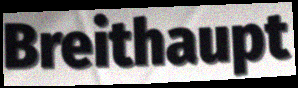
Breithaupt